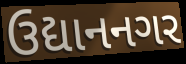
ઉદ્યાનનગર